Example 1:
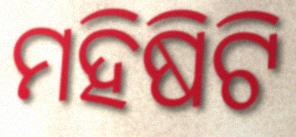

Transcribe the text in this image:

ମହିଷିଟି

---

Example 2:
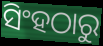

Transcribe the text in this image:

ସିଂହଠାରୁ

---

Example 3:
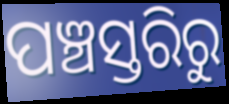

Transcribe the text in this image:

ପଞ୍ଚସ୍ତରିରୁ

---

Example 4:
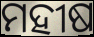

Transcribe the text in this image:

ମହୀଷ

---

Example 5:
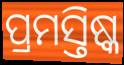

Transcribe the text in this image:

ପ୍ରମସ୍ତିଷ୍କ